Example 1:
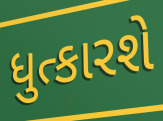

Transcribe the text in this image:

ધુત્કારશે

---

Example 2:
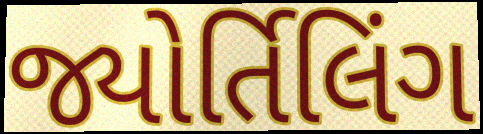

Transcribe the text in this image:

જ્યોર્તિલિંગ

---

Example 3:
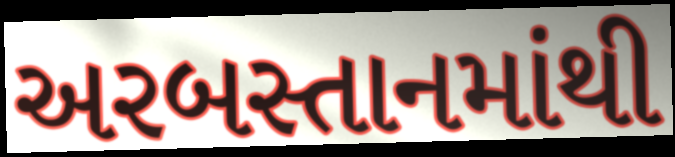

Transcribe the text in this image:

અરબસ્તાનમાંથી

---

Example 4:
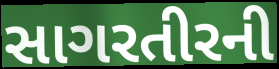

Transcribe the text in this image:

સાગરતીરની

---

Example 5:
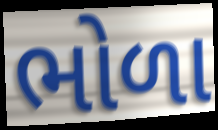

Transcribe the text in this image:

ભોળા